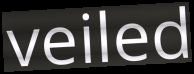
veiled